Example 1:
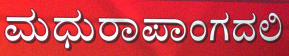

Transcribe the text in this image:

ಮಧುರಾಪಾಂಗದಲಿ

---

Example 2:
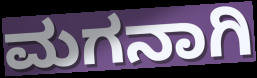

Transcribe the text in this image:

ಮಗನಾಗಿ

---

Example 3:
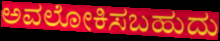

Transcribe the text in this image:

ಅವಲೋಕಿಸಬಹುದು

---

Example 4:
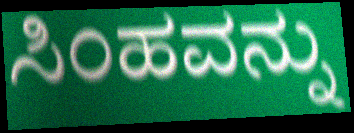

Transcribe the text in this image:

ಸಿಂಹವನ್ನು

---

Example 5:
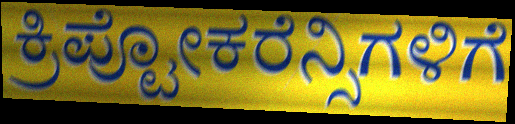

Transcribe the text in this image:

ಕ್ರಿಪ್ಟೋಕರೆನ್ಸಿಗಳಿಗೆ